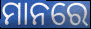
ମାନରେ